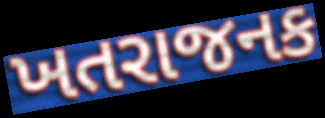
ખતરાજનક